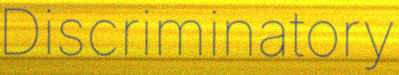
Discriminatory